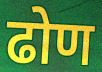
ढोण